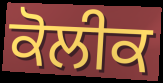
ਕੋਲੀਕ